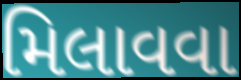
મિલાવવા